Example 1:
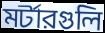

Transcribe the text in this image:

মর্টারগুলি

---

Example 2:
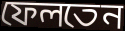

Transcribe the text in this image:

ফেলতেন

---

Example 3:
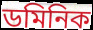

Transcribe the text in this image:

ডমিনিক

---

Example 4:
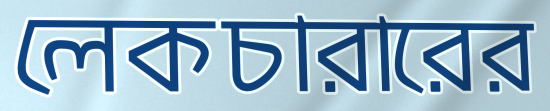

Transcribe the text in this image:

লেকচারারের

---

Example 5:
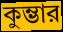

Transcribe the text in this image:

কুম্ভার